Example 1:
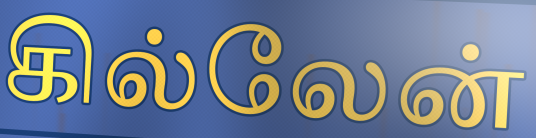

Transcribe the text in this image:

கில்லேன்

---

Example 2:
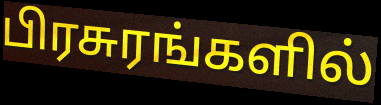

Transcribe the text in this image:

பிரசுரங்களில்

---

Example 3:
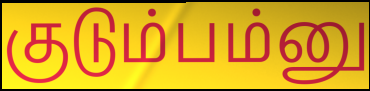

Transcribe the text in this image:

குடும்பம்னு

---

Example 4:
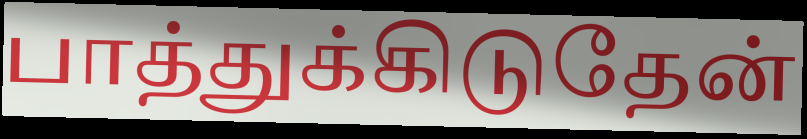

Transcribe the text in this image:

பாத்துக்கிடுதேன்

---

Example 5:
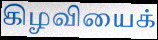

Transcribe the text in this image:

கிழவியைக்